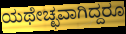
ಯಥೇಚ್ಛವಾಗಿದ್ದರೂ